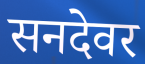
सनदेवर